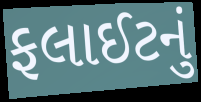
ફલાઈટનું